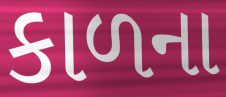
કાળના